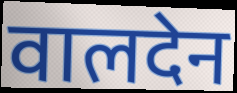
वालदेन